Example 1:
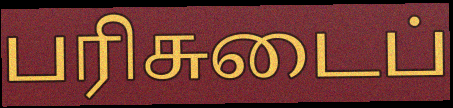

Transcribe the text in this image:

பரிசுடைப்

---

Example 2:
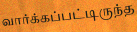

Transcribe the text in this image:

வார்க்கப்பட்டிருந்த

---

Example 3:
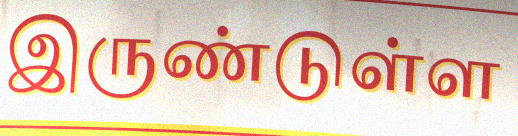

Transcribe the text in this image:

இருண்டுள்ள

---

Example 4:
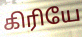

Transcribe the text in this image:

கிரியே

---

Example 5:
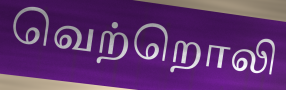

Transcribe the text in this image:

வெற்றொலி